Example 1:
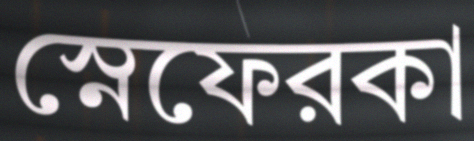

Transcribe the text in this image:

স্নেফেরকা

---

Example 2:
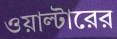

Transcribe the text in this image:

ওয়াল্টারের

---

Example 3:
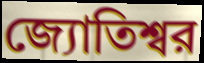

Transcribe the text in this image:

জ্যোতিশ্বর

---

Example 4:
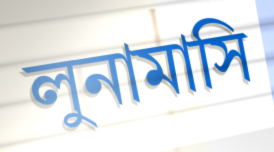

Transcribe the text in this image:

লুনামাসি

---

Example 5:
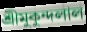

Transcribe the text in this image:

শ্রীমুকুন্দলাল